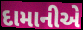
દામાનીએ